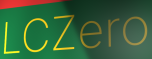
LCZero